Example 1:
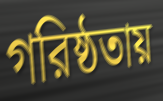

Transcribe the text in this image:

গরিষ্ঠতায়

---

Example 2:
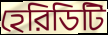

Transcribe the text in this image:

হেরিডিটি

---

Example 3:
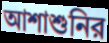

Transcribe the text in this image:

আশাশুনির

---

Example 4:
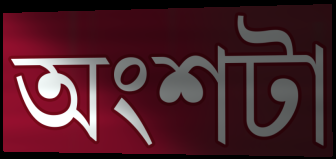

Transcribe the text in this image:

অংশটা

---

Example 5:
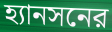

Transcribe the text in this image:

হ্যানসনের